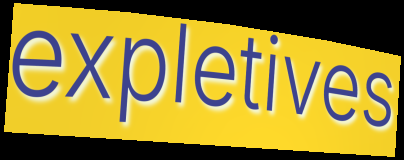
expletives